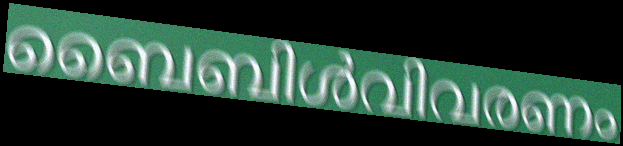
ബൈബിൾവിവരണം